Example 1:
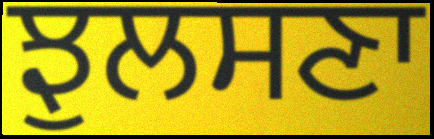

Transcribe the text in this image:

ਝੁਲਸਣਾ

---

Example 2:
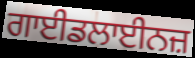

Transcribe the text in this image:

ਗਾਈਡਲਾਈਨਜ਼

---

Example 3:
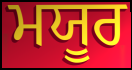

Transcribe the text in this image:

ਮਯੂਰ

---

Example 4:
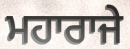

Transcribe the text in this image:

ਮਹਾਰਾਜੇ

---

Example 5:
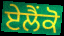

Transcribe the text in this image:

ਏਲੈਂਕੋ